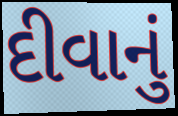
દીવાનું